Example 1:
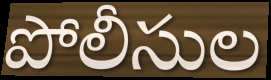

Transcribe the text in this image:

పోలీసుల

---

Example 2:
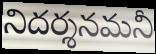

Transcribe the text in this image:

నిదర్శనమనీ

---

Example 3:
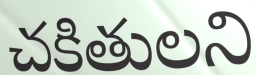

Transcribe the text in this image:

చకితులని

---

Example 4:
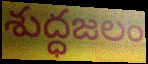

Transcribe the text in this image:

శుద్ధజలం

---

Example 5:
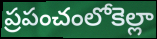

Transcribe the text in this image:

ప్రపంచంలోకెల్లా